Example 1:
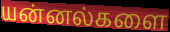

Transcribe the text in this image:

யன்னல்களை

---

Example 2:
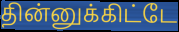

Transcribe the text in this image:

தின்னுக்கிட்டே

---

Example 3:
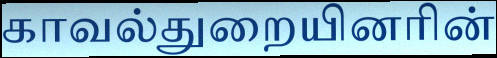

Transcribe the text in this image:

காவல்துறையினரின்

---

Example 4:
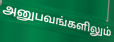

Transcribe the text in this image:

அனுபவங்களிலும்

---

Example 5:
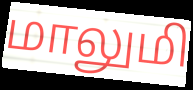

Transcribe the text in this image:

மாலுமி